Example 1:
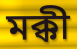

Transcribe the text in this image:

মক্কী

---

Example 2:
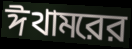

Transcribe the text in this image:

ঈথামরের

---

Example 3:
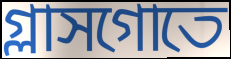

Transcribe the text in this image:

গ্লাসগোতে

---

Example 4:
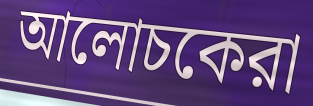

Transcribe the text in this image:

আলোচকেরা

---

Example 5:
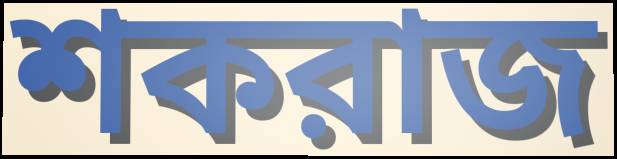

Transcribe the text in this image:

শকরাজ